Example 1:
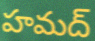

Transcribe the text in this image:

హమద్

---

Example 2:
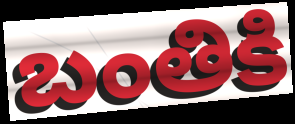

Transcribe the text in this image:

బంతికి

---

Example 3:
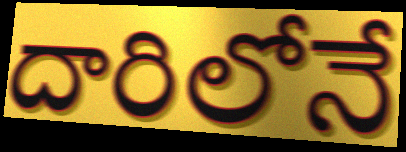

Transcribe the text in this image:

దారిలోనే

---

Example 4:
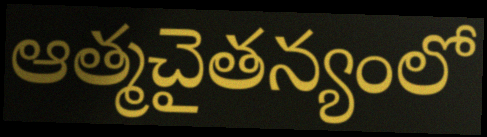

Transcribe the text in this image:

ఆత్మచైతన్యంలో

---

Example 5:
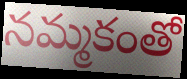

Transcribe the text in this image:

నమ్మకంతో